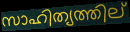
സാഹിത്യത്തില്